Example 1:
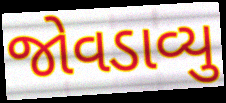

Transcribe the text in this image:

જોવડાવ્યુ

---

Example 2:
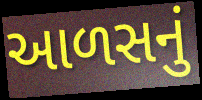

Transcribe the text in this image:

આળસનું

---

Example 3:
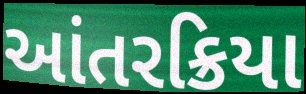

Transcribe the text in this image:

આંતરક્રિયા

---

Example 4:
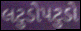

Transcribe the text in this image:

લટુડોપટુડો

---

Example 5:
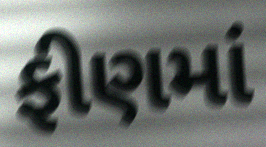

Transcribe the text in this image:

ફીણમાં